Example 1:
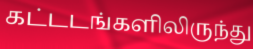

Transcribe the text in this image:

கட்டடங்களிலிருந்து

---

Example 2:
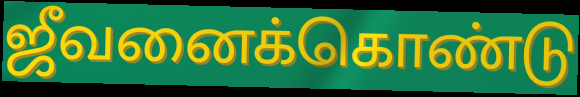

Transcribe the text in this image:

ஜீவனைக்கொண்டு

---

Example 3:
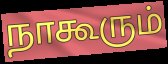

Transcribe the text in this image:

நாகூரும்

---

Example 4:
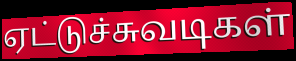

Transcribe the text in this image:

ஏட்டுச்சுவடிகள்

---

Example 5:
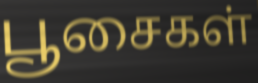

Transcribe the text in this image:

பூசைகள்